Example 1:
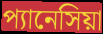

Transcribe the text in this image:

প্যানেসিয়া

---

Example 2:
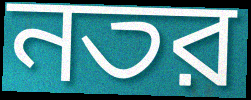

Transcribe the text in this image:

নতর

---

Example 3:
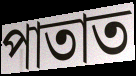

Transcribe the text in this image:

পাতাত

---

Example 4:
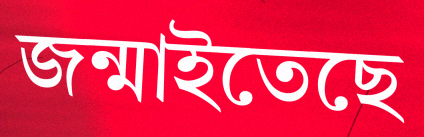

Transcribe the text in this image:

জন্মাইতেছে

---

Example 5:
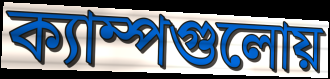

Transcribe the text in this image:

ক্যাম্পগুলোয়